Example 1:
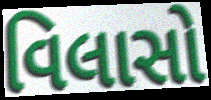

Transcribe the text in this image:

વિલાસો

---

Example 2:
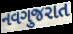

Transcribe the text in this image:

નવગુજરાત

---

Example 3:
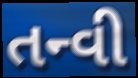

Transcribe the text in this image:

તન્વી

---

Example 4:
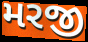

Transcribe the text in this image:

મરજી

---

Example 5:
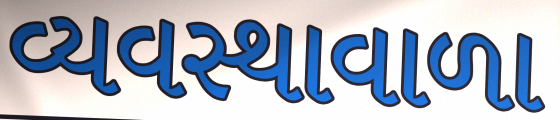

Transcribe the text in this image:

વ્યવસ્થાવાળા